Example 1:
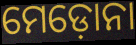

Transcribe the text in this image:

ମେଡ଼ୋନା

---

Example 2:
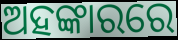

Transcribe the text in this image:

ଅହଙ୍କାରରେ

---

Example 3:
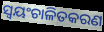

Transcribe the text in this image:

ସ୍ୱୟଂଚାଳିତକରଣ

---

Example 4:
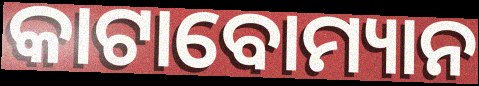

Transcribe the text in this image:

କାଟାବୋମ୍ୟାନ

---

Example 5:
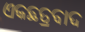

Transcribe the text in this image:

ଏକଛତ୍ରବାଦ